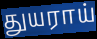
துயராய்